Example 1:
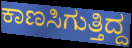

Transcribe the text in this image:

ಕಾಣಸಿಗುತ್ತಿದ್ದ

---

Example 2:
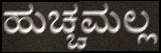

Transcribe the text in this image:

ಹುಚ್ಚಮಲ್ಲ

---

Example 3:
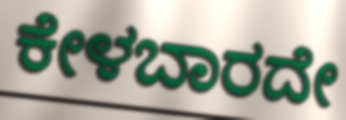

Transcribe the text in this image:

ಕೇಳಬಾರದೇ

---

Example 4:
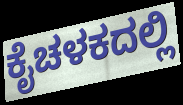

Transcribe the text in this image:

ಕೈಚಳಕದಲ್ಲಿ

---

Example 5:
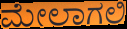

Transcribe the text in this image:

ಮೇಲಾಗಲಿ